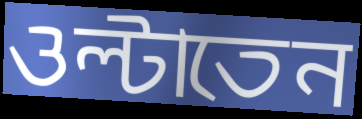
ওল্টাতেন